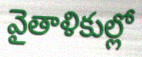
వైతాళికుల్లో